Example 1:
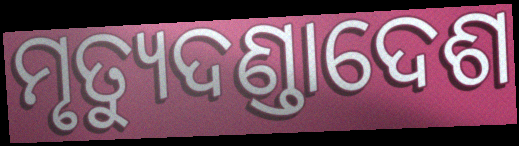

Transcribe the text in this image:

ମୃତ୍ୟୁଦଣ୍ଡାଦେଶ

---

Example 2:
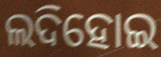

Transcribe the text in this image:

ଲଦିହୋଇ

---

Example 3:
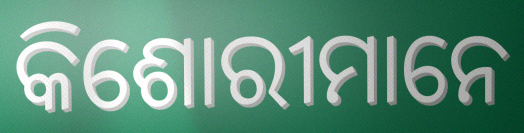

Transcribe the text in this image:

କିଶୋରୀମାନେ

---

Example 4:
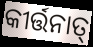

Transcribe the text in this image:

କୀର୍ତ୍ତନାତ୍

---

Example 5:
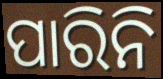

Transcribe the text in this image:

ପାରିନି